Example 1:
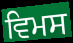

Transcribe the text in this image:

ਵਿਮਸ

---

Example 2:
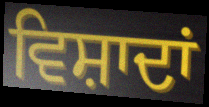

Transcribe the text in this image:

ਵਿਸ਼ਾਦਾਂ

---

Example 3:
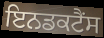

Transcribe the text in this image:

ਇਨਡਕਟੈਂਸ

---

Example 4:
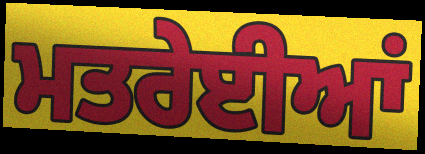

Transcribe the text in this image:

ਮਤਰੇਈਆਂ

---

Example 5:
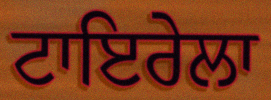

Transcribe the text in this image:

ਟਾਇਰੇਲਾ